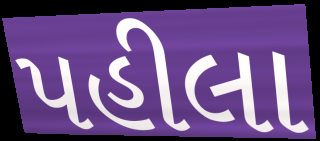
પહીલા